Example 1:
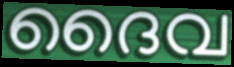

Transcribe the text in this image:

ദൈവ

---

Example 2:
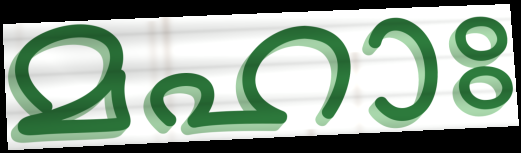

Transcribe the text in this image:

മഹാഃ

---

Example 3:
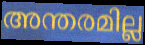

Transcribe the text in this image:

അന്തരമില്ല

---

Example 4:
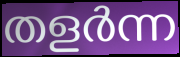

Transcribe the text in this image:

തളർന്ന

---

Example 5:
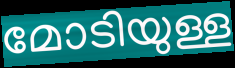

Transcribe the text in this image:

മോടിയുള്ള